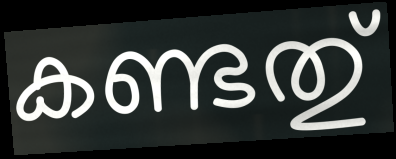
കണ്ടതു്